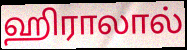
ஹிராலால்